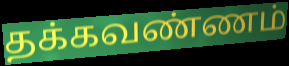
தக்கவண்ணம்